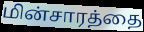
மின்சாரத்தை